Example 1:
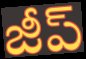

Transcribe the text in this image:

జీప్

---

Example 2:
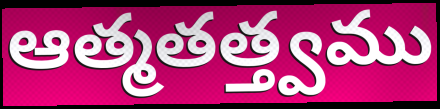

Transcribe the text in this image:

ఆత్మతత్త్వము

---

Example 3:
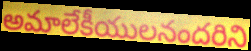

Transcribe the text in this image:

అమాలేకీయులనందరిని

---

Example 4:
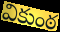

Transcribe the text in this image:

వికుంఠ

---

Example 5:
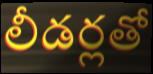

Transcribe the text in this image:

లీడర్లతో